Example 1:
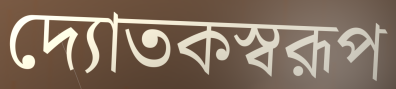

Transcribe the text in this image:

দ্যোতকস্বরূপ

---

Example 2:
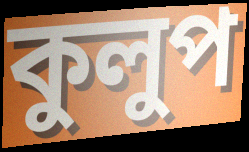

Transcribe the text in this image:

কুলুপ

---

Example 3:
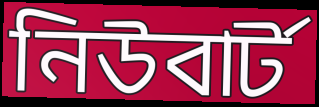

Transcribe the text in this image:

নিউবার্ট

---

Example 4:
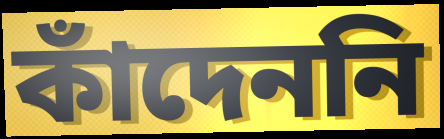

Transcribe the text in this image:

কাঁদেননি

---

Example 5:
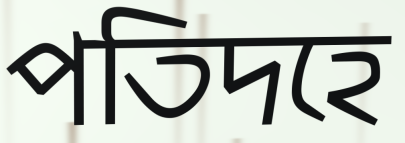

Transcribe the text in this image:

পতিদহে